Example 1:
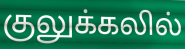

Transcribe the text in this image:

குலுக்கலில்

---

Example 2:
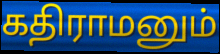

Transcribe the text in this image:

கதிராமனும்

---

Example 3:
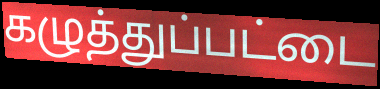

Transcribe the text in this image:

கழுத்துப்பட்டை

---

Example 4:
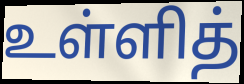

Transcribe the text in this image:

உள்ளித்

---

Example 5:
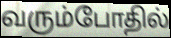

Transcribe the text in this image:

வரும்போதில்